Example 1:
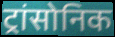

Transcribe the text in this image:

ट्रांसोनिक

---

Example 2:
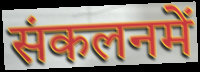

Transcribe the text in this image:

संकलनमें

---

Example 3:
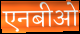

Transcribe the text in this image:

एनबीओ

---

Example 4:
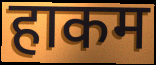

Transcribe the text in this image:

हाकम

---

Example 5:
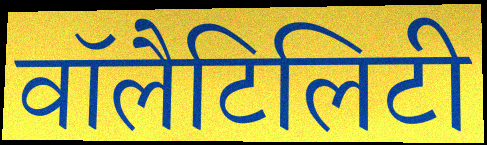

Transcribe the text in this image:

वॉलैटिलिटी